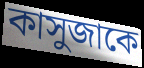
কাসুজাকে